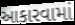
આકારવામાં